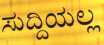
ಸುದ್ದಿಯಲ್ಲ